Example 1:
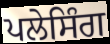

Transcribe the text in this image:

ਪਲੇਸਿੰਗ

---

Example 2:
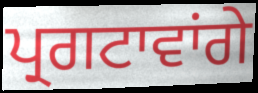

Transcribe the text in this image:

ਪ੍ਰਗਟਾਵਾਂਗੇ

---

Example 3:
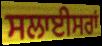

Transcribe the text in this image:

ਸਲਾਈਸਰਾਂ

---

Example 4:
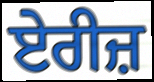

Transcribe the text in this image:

ਏਰੀਜ਼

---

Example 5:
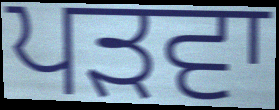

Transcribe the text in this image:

ਪੜਵਾ